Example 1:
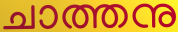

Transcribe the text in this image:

ചാത്തനു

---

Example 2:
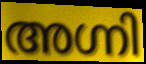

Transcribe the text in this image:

അഗ്നി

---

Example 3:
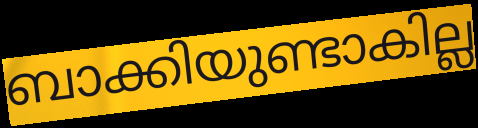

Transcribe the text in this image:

ബാക്കിയുണ്ടാകില്ല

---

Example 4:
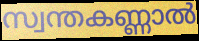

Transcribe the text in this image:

സ്വന്തകണ്ണാൽ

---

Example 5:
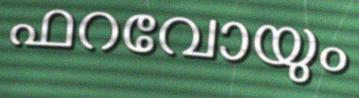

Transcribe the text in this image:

ഫറവോയും